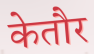
केतौर